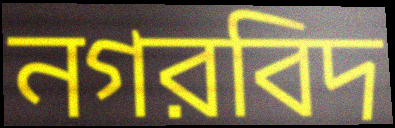
নগরবিদ